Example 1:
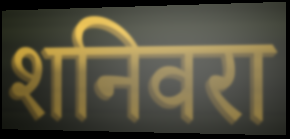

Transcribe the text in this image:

शनिवरा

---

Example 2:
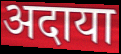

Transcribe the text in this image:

अदाया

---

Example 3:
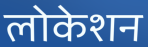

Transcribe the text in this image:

लोकेशन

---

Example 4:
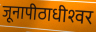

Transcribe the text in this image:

जूनापीठाधीश्वर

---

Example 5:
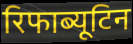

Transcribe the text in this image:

रिफाब्यूटिन